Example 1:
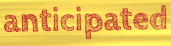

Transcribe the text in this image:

anticipated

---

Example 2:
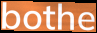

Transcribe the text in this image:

bothe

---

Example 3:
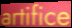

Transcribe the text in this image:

artifice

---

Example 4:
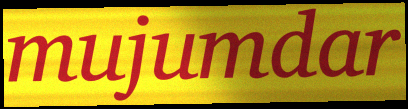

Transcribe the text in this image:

mujumdar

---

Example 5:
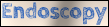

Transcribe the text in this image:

Endoscopy